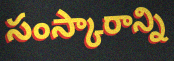
సంస్కారాన్ని